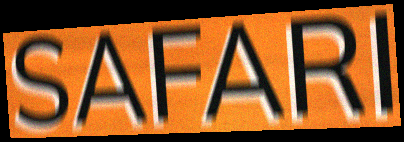
SAFARI